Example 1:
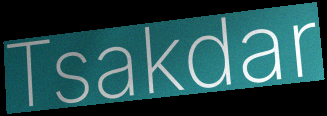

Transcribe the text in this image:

Tsakdar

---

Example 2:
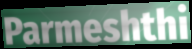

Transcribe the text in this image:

Parmeshthi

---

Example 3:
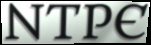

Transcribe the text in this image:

NTPE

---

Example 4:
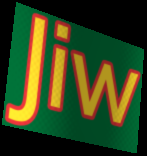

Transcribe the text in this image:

Jiw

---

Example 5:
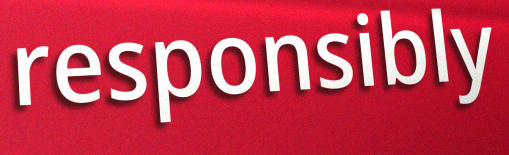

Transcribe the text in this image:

responsibly